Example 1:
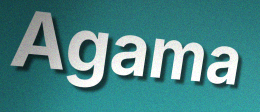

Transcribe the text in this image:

Agama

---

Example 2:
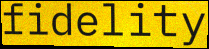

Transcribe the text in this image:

fidelity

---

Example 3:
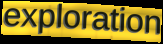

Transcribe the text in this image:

exploration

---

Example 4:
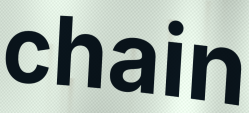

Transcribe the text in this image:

chain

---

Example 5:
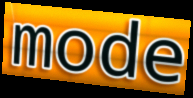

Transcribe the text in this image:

mode